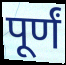
पूर्णं